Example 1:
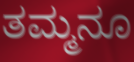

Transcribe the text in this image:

ತಮ್ಮನೂ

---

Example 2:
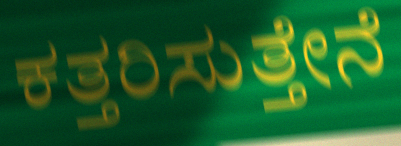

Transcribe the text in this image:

ಕತ್ತರಿಸುತ್ತೇನೆ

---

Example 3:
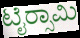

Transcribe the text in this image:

ಟೈರ‍್ಸಾಮಿ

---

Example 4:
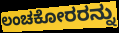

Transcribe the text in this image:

ಲಂಚಕೋರರನ್ನು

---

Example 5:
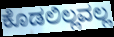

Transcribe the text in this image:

ಕೊಡಲಿಲ್ಲವಲ್ಲ